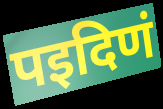
पइदिणं